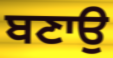
ਬਣਾਉ